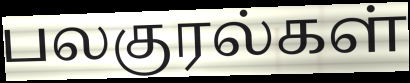
பலகுரல்கள்